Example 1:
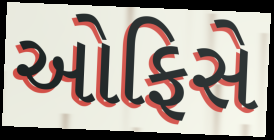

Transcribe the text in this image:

ઓફિસે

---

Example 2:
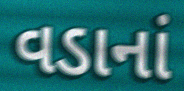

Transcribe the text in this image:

વડાનાં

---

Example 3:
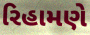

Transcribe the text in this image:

રિહામણે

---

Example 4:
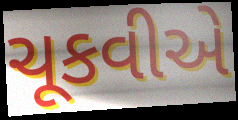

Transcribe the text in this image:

ચૂકવીએ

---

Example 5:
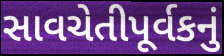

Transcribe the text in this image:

સાવચેતીપૂર્વકનું